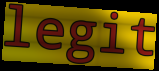
legit